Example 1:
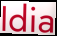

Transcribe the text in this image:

Idia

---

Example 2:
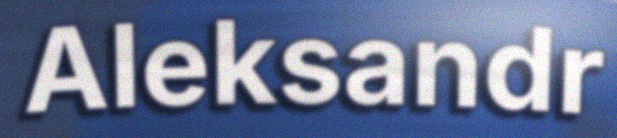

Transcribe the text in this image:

Aleksandr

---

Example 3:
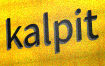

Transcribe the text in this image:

kalpit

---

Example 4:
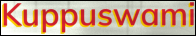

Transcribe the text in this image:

Kuppuswami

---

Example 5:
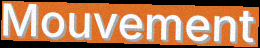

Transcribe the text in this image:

Mouvement